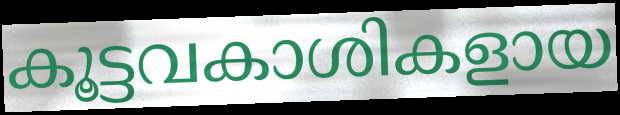
കൂട്ടവകാശികളായ